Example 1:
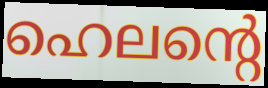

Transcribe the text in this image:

ഹെലന്റെ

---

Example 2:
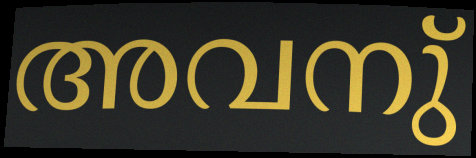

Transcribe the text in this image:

അവനു്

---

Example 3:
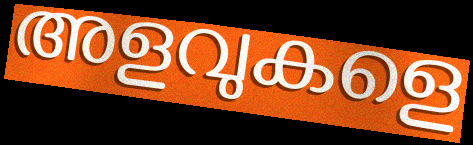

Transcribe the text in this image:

അളവുകളെ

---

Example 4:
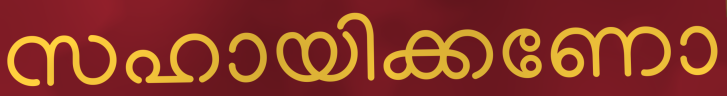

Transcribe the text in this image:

സഹായിക്കണോ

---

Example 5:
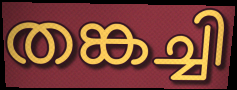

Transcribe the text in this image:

തങ്കച്ചി